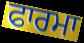
ਫਾਰਮਾ